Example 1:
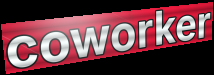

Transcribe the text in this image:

coworker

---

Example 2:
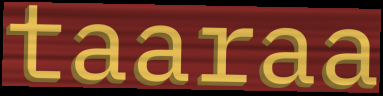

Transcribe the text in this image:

taaraa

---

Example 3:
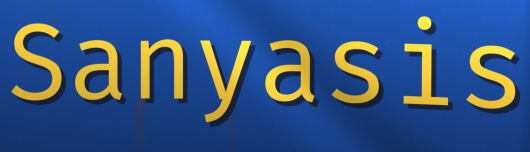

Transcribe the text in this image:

Sanyasis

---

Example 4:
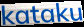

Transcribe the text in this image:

kataku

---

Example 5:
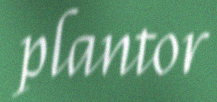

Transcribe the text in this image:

plantor